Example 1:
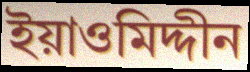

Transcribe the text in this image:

ইয়াওমিদ্দীন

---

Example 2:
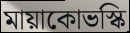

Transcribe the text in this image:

মায়াকোভস্কি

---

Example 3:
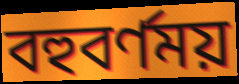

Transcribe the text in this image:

বহুবর্ণময়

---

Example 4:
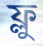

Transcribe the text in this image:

ফ্লু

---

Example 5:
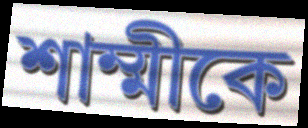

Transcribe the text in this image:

শাম্মীকে